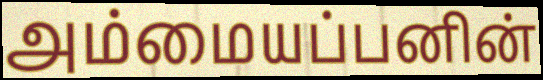
அம்மையப்பனின்